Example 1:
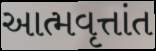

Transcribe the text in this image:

આત્મવૃત્તાંત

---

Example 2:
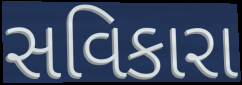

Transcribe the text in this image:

સવિકારા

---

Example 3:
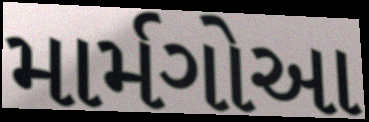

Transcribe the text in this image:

માર્મગોઆ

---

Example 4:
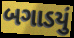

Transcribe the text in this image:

બગાડયું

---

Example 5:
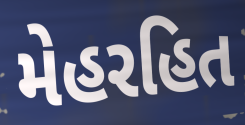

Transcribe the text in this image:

મેહરહિત